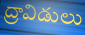
ద్రావిడులు